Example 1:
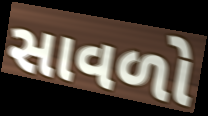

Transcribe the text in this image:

સાવળો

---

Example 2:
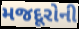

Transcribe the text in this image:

મજદૂરોની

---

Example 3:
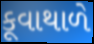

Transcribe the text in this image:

કૂવાથાળે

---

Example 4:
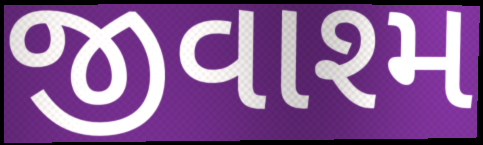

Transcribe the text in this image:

જીવાશ્મ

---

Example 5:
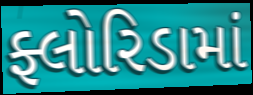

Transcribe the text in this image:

ફ્લોરિડામાં